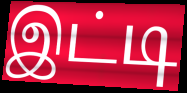
இட்டி